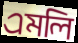
এমলি